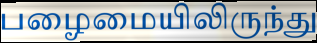
பழைமையிலிருந்து